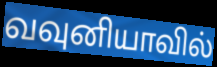
வவுனியாவில்